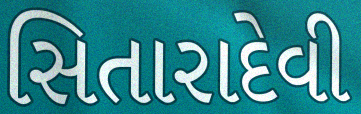
સિતારાદેવી